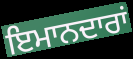
ਇਮਾਨਦਾਰਾਂ